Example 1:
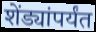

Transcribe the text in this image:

शेंड्यांपर्यंत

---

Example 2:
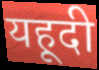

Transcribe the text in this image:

यहूदी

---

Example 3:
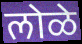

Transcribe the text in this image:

लोळे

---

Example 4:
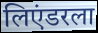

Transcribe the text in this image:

लिएंडरला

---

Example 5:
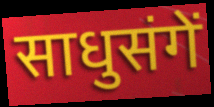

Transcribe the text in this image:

साधुसंगें